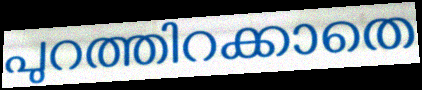
പുറത്തിറക്കാതെ